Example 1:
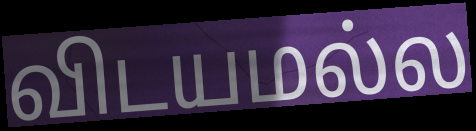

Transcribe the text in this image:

விடயமல்ல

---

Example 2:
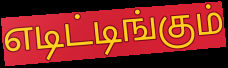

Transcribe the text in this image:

எடிட்டிங்கும்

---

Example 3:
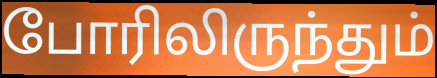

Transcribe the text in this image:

போரிலிருந்தும்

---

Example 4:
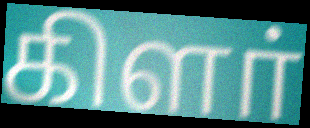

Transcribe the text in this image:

கிளர்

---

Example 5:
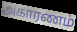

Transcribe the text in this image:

அகாரணம்